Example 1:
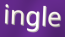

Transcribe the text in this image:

ingle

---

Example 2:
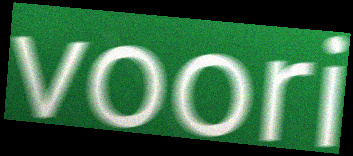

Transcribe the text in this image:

voori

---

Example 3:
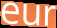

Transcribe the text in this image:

eur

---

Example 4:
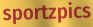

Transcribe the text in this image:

sportzpics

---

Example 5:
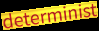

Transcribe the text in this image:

determinist